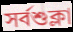
সর্বশুক্লা